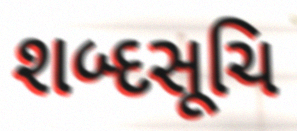
શબ્દસૂચિ